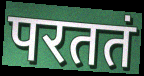
परततं